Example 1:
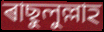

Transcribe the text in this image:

ৰাছুলুল্লাহ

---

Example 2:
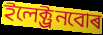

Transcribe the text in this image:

ইলেক্ট্ৰনবোৰ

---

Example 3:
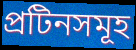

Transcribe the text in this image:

প্ৰটিনসমূহ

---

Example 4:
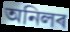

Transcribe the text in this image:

অনিলৰ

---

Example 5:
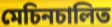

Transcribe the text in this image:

মেচিনচালিত